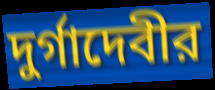
দুর্গাদেবীর